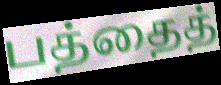
பத்தைத்